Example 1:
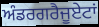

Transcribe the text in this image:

ਅੰਡਰਗਰੈਜੂਏਟਾਂ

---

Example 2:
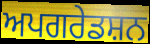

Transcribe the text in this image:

ਅਪਗਰੇਡਸ਼ਨ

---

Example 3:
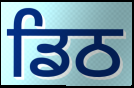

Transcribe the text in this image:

ਡਿਠ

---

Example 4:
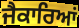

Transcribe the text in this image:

ਜੈਕਾਰਿਆਂ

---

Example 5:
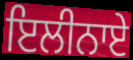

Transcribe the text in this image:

ਇਲੀਨਾਏ